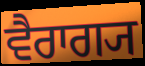
ਵੈਰਾਗ੍ਯ